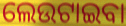
ଲେଉଟାଇବା